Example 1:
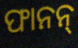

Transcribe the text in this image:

ଫାନନ୍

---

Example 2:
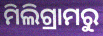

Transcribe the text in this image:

ମିଲିଗ୍ରାମରୁ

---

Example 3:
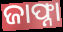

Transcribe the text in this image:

ଜାଫ୍ନା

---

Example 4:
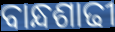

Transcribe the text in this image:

ବାନ୍ଧଶାଢୀ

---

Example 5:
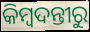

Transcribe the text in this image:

କିମ୍ବଦନ୍ତୀରୁ